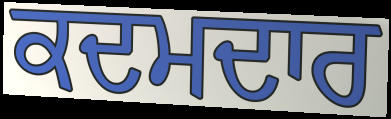
ਕਦਮਦਾਰ